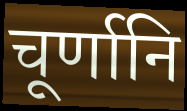
चूर्णानि